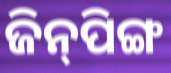
ଜିନ୍‌ପିଙ୍ଗ